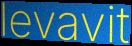
levavit